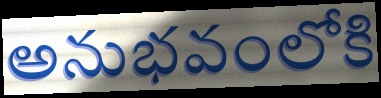
అనుభవంలోకి